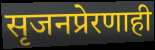
सृजनप्रेरणाही